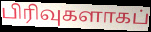
பிரிவுகளாகப்